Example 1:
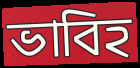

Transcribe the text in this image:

ভাবিহ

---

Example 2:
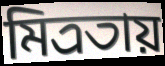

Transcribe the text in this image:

মিত্রতায়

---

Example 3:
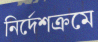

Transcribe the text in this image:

নির্দেশক্রমে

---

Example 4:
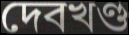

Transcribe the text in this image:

দেবখণ্ড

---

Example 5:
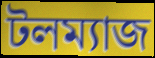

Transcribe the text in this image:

টলম্যাজ